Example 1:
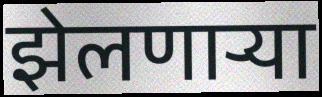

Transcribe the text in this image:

झेलणाऱ्या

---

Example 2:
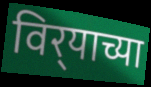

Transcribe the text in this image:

विर्‍याच्या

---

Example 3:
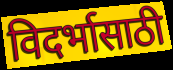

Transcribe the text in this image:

विदर्भासाठी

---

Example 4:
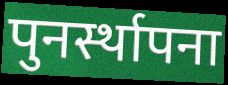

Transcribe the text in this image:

पुनर्स्थापना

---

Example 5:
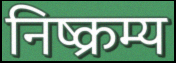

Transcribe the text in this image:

निष्क्रम्य